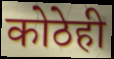
कोठेही